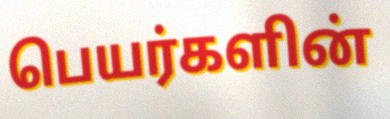
பெயர்களின்